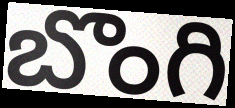
బొంగి